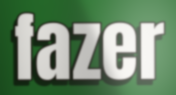
fazer